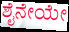
ಶೈನೇಯೇ